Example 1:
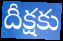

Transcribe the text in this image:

దీక్షకు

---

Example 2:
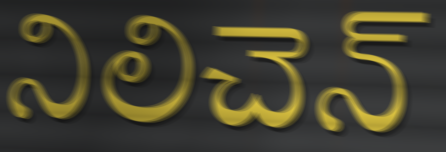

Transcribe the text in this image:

నిలిచెన్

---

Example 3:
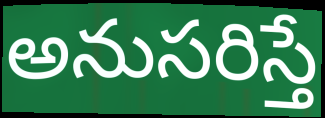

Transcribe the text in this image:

అనుసరిస్తే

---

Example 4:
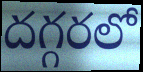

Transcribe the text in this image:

దగ్గరలో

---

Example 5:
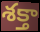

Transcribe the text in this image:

శక్తా